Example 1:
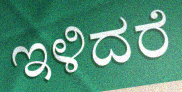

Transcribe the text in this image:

ಇಳಿದರೆ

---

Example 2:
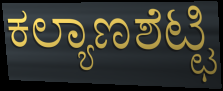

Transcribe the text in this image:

ಕಲ್ಯಾಣಶೆಟ್ಟಿ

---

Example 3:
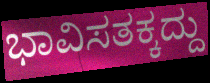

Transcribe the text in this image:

ಭಾವಿಸತಕ್ಕದ್ದು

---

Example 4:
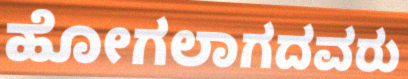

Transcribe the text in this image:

ಹೋಗಲಾಗದವರು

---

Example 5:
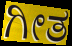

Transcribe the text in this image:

ಗೀತ